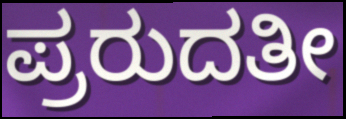
ಪ್ರರುದತೀ